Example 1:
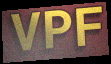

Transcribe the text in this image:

VPF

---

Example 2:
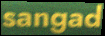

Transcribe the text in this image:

sangad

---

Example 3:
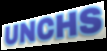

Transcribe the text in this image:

UNCHS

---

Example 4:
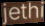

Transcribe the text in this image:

jethi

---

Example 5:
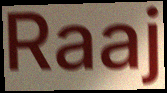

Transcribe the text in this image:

Raaj